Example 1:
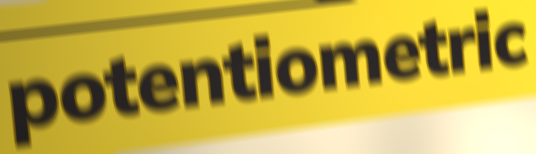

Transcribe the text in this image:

potentiometric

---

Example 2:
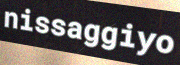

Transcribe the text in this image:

nissaggiyo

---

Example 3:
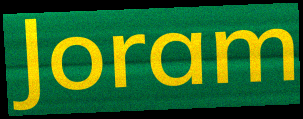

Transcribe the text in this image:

Joram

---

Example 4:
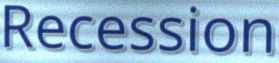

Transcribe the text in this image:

Recession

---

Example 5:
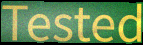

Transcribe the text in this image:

Tested